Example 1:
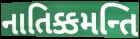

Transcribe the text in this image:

નાતિક્કમન્તિ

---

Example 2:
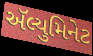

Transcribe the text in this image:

ઍલ્યુમિનેટ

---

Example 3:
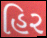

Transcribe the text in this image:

હિર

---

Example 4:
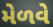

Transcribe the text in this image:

મેળવે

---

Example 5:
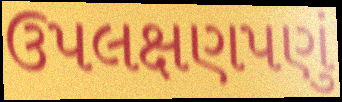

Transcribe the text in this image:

ઉપલક્ષણપણું